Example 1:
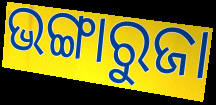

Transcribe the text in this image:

ଭଙ୍ଗାରୁଜା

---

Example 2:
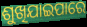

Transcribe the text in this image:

ଶୁଖିଯାଇପାରେ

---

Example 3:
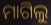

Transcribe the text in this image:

ମାଗିଲୁ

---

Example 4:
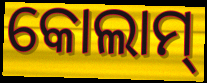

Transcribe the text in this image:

କୋଲାମ୍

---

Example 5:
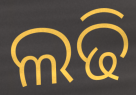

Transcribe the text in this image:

ଲଢି